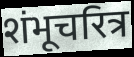
शंभूचरित्र